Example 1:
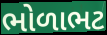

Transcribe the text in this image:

ભોળાભટ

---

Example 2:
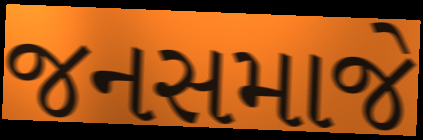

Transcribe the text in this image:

જનસમાજે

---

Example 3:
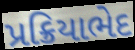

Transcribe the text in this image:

પ્રક્રિયાભેદ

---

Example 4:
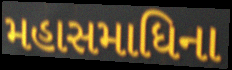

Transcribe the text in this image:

મહાસમાધિના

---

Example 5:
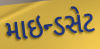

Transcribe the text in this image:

માઇન્ડસેટ